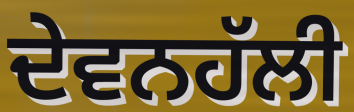
ਦੇਵਨਹੱਲੀ